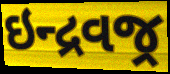
ઇન્દ્રવજ્ર